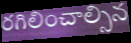
రగిలించాల్సిన